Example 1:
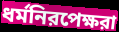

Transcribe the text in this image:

ধর্মনিরপেক্ষরা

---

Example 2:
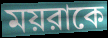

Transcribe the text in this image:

ময়রাকে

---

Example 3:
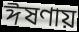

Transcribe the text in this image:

ঈষণায়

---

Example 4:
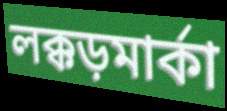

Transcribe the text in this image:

লক্কড়মার্কা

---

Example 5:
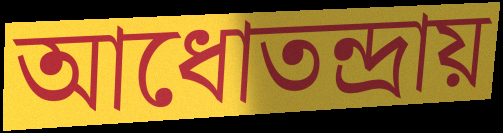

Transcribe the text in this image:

আধোতন্দ্রায়